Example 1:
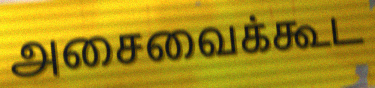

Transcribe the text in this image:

அசைவைக்கூட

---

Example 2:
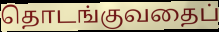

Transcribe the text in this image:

தொடங்குவதைப்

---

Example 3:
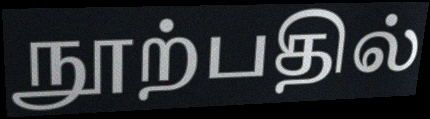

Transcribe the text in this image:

நூற்பதில்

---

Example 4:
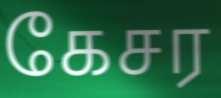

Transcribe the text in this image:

கேசர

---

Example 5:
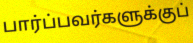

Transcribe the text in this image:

பார்ப்பவர்களுக்குப்